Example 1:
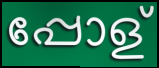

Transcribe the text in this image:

പ്പോള്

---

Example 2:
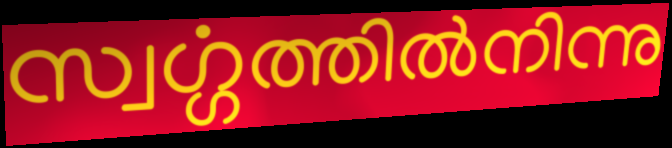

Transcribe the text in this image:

സ്വൎഗ്ഗത്തിൽനിന്നു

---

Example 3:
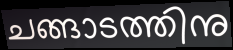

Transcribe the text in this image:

ചങ്ങാടത്തിനു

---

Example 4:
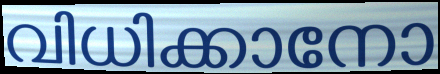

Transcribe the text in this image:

വിധിക്കാനോ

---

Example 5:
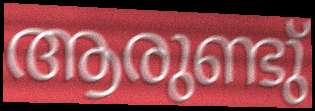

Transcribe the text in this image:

ആരുണ്ടു്